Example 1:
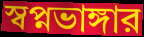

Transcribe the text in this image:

স্বপ্নভাঙ্গার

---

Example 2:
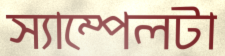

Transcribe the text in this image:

স্যাম্পেলটা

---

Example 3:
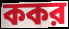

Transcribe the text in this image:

ককর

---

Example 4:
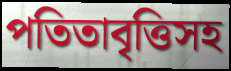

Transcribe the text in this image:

পতিতাবৃত্তিসহ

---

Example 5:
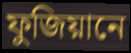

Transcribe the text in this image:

ফুজিয়ানে